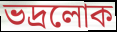
ভদ্রলোক